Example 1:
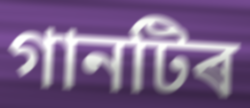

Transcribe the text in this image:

গানটিৰ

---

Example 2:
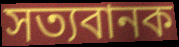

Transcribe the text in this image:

সত্যবানক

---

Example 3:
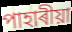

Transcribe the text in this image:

পাহাৰীয়া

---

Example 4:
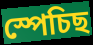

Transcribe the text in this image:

স্পেচিছ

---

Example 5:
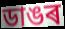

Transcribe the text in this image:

ডাঙৰ